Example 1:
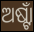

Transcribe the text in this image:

ଅଷ୍ଟାଁ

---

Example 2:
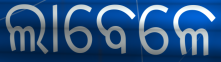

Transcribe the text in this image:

ଲାବେଳେ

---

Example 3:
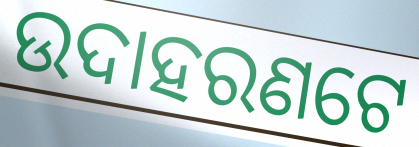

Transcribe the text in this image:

ଉଦାହରଣଟେ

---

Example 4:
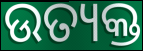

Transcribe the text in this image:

ଉତ୍ୟକ୍ତ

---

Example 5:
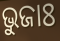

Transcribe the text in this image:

ଭୁଜାଃ